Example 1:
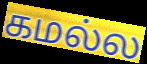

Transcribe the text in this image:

கமல்ல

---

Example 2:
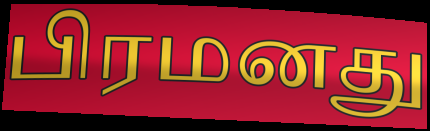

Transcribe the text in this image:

பிரமனது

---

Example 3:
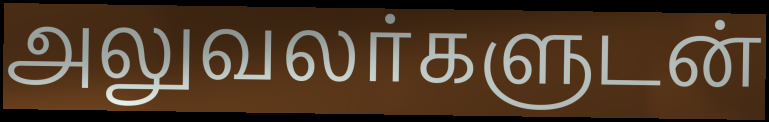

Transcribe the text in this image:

அலுவலர்களுடன்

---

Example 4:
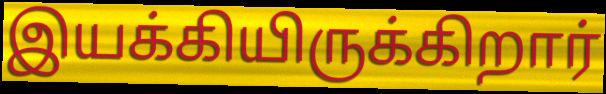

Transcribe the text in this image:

இயக்கியிருக்கிறார்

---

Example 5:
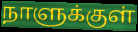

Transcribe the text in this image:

நாளுக்குள்